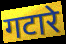
गटारे